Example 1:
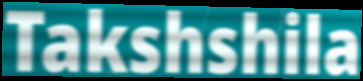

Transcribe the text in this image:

Takshshila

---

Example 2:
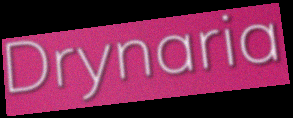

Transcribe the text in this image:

Drynaria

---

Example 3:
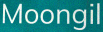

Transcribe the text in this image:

Moongil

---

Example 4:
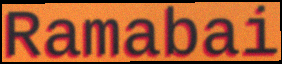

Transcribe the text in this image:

Ramabai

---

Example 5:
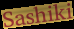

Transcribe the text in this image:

Sashiki